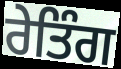
ਰੇਤਿੰਗ